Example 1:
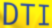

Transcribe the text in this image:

DTI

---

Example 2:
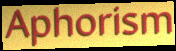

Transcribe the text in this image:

Aphorism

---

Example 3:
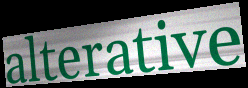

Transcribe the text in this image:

alterative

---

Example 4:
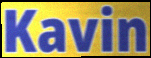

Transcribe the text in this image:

Kavin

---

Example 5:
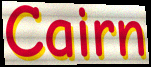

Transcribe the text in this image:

Cairn